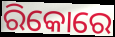
ରିକୋରେ